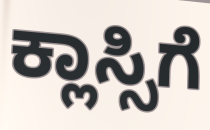
ಕ್ಲಾಸ್ಸಿಗೆ